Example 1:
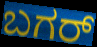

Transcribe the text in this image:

ಬಗರ್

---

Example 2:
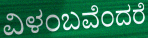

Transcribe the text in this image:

ವಿಳಂಬವೆಂದರೆ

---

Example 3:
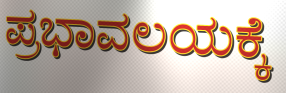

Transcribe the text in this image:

ಪ್ರಭಾವಲಯಕ್ಕೆ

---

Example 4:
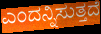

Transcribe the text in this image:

ಎಂದನ್ನಿಸುತ್ತದೆ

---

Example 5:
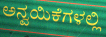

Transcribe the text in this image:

ಅನ್ವಯಿಕೆಗಳಲ್ಲಿ